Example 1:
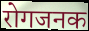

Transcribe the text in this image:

रोगजनक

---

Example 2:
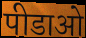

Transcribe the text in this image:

पीडाओ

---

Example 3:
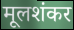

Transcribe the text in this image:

मूलशंकर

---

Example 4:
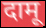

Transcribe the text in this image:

दामू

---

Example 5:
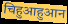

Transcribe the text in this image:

चिहुआहुआन